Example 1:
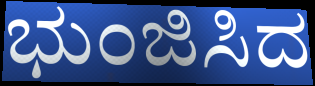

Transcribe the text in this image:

ಭುಂಜಿಸಿದ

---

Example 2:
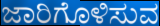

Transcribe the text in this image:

ಜಾರಿಗೊಳಿಸುವ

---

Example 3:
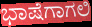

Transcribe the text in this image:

ಭಾಷೆಗಾಗಲಿ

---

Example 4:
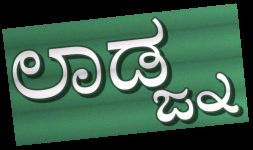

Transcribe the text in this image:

ಲಾಡ್ಜ್ನ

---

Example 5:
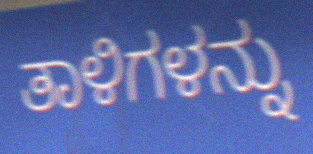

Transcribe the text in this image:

ತಾಳಿಗಳನ್ನು